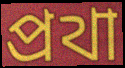
প্ৰথা